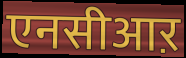
एनसीआऱ